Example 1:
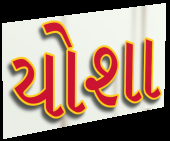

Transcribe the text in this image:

યોશા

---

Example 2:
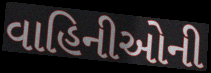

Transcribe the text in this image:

વાહિનીઓની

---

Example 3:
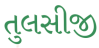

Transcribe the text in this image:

તુલસીજી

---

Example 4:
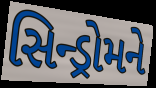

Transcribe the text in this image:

સિન્ડ્રોમને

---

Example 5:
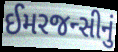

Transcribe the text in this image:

ઈમરજન્સીનું